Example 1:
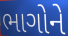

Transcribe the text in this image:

ભાગોને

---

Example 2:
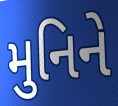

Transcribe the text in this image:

મુનિને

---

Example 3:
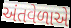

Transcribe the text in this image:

અંતવેળાએ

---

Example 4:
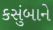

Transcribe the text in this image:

કસુંબાને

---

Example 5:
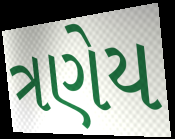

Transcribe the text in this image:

ત્રણેય